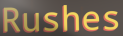
Rushes